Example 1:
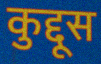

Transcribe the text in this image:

कुद्दूस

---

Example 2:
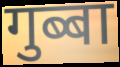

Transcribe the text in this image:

गुब्बा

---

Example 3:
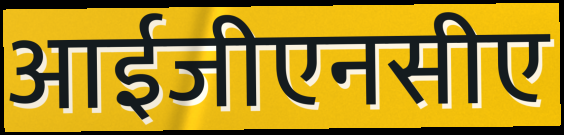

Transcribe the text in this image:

आईजीएनसीए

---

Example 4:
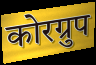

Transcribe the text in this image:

कोरग्रुप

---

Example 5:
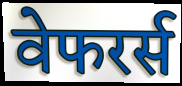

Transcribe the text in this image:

वेफरर्स